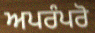
ਅਪਰੰਪਰੋ